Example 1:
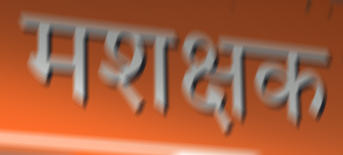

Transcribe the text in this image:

मशक्षक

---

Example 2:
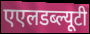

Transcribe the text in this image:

एएलडब्ल्यूटी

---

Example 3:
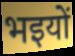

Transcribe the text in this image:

भइयों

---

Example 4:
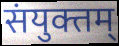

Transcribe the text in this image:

संयुक्तम्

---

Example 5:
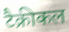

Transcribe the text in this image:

टैक्रीकल